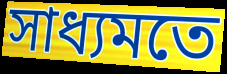
সাধ্যমতে